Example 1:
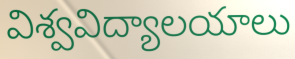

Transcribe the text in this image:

విశ్వవిద్యాలయాలు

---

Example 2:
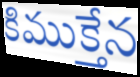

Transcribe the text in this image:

కిముక్తేన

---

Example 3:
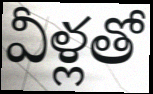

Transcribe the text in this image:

వీళ్లతో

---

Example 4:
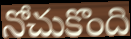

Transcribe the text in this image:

నోచుకొంది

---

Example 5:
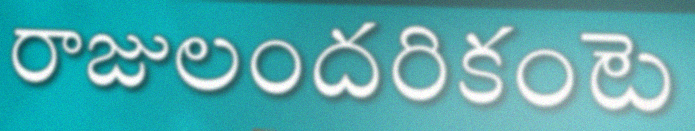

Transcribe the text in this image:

రాజులందరికంటె